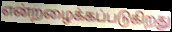
என்றழைக்கப்படுகிறது